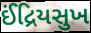
ઈંદ્રિયસુખ